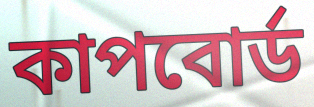
কাপবোর্ড